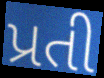
પ્રતી